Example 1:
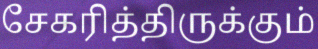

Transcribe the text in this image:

சேகரித்திருக்கும்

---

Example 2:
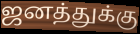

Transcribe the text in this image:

ஜனத்துக்கு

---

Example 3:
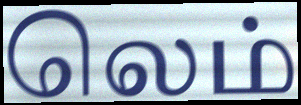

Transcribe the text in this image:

லெம்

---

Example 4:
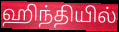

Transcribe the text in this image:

ஹிந்தியில்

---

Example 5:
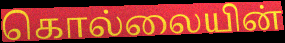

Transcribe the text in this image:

கொல்லையின்